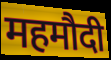
महमौदी